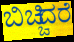
ಬಿಚ್ಚಿದರೆ